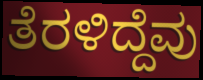
ತೆರಳಿದ್ದೆವು